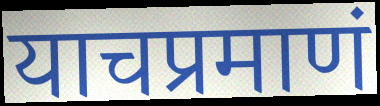
याचप्रमाणं